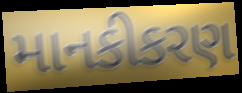
માનકીકરણ